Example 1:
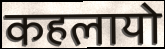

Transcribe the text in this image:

कहलायो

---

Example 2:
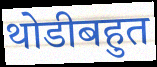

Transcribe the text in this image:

थोडीबहुत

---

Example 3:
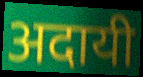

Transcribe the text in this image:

अदायी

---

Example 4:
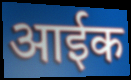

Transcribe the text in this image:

आईक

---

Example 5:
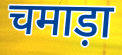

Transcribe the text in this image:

चमाड़ा